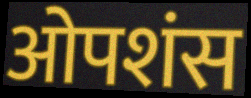
ओपशंस